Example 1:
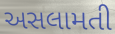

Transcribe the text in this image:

અસલામતી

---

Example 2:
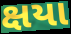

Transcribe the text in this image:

ક્ષયા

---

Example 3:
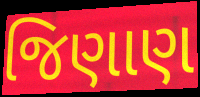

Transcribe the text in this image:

જિણાણ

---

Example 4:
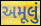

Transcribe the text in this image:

અમૂલું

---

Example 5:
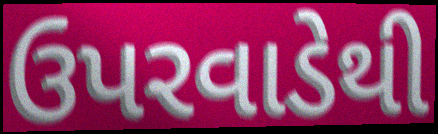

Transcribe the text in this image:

ઉપરવાડેથી